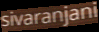
sivaranjani